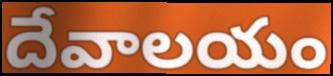
దేవాలయం